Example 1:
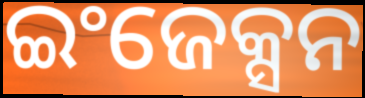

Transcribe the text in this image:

ଇଂଜେକ୍ସନ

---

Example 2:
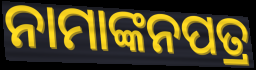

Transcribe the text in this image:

ନାମାଙ୍କନପତ୍ର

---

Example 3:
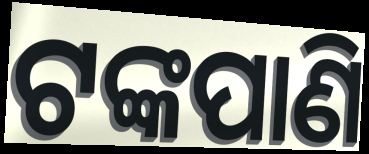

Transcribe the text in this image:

ଟଙ୍କପାଣି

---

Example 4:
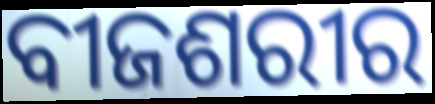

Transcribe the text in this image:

ବୀଜଶରୀର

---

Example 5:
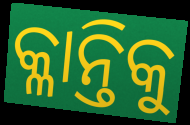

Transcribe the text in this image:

କ୍ଳାନ୍ତିକୁ